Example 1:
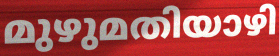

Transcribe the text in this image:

മുഴുമതിയാഴി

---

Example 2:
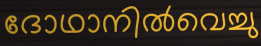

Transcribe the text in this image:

ദോഥാനിൽവെച്ചു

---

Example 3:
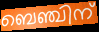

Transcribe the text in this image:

ബെഞ്ചിന്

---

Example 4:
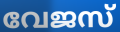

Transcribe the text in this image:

വേജസ്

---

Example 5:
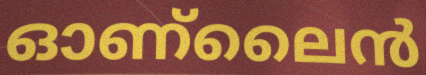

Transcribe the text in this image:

ഓണ്ലൈൻ